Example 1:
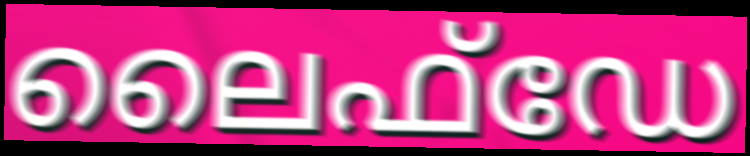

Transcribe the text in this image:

ലൈഫ്ഡേ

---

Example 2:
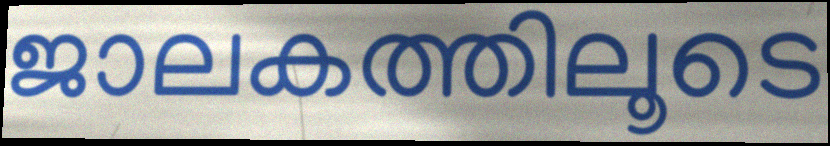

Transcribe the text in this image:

ജാലകത്തിലൂടെ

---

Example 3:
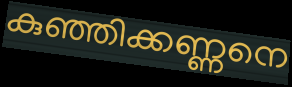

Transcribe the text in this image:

കുഞ്ഞിക്കണ്ണനെ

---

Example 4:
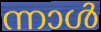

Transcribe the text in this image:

ന്നാൾ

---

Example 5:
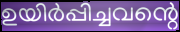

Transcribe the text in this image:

ഉയിർപ്പിച്ചവന്റെ